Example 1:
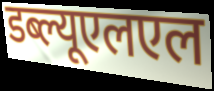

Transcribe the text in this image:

डब्ल्यूएलएल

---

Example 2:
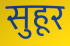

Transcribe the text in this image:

सुहूर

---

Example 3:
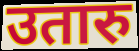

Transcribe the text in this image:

उतारु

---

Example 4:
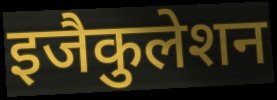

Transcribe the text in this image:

इजैकुलेशन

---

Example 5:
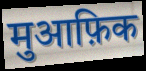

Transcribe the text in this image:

मुआफ़िक